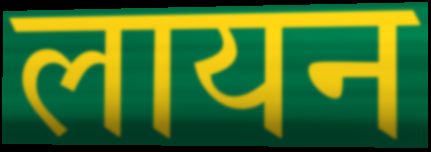
लायन